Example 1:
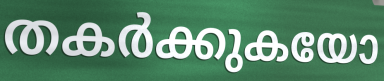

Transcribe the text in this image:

തകർക്കുകയോ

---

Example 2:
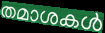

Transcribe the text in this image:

തമാശകൾ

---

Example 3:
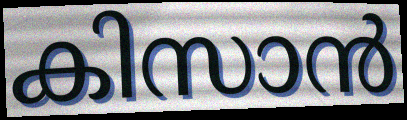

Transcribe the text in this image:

കിസാൻ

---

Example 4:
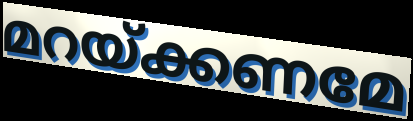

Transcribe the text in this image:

മറയ്ക്കണമേ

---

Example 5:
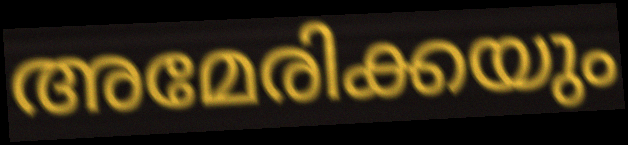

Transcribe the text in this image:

അമേരിക്കയും